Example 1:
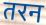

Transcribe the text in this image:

तरन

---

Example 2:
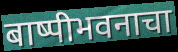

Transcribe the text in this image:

बाष्पीभवनाचा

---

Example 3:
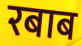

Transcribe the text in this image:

रबाब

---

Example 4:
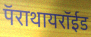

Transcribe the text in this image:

पॅराथायरॉईड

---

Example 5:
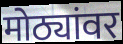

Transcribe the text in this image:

मोठ्यांवर